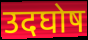
उदघोष